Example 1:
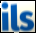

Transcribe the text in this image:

ils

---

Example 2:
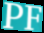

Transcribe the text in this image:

PF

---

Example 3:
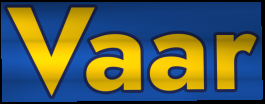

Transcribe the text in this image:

Vaar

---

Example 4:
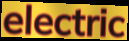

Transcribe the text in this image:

electric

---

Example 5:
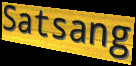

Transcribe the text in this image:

Satsang